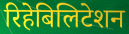
रिहेबिलिटेशन